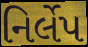
નિર્લેપ